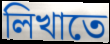
লিখাতে